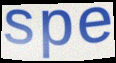
spe